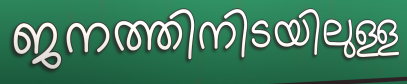
ജനത്തിനിടയിലുള്ള